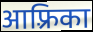
आफ़्रिका